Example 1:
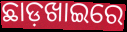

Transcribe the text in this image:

ଛାଡ଼ଖାଇରେ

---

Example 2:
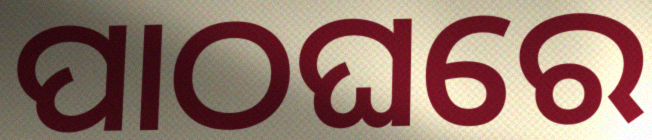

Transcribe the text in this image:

ପାଠଘରେ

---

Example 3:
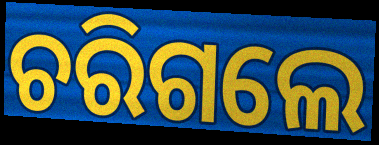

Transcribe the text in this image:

ଚରିଗଲେ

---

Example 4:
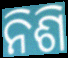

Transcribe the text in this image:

ନିଶି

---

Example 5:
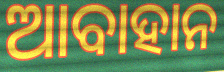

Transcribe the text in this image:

ଆବାହାନ